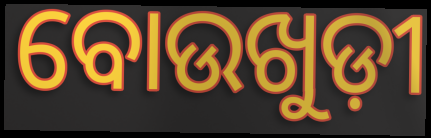
ବୋଉଖୁଡ଼ୀ